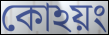
কোঽয়ং